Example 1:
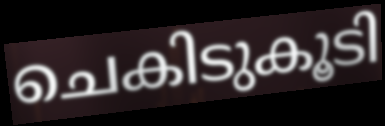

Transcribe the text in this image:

ചെകിടുകൂടി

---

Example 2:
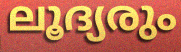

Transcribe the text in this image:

ലൂദ്യരും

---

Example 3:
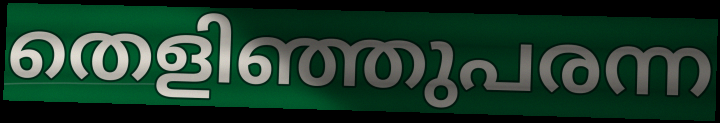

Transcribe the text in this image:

തെളിഞ്ഞുപരന്ന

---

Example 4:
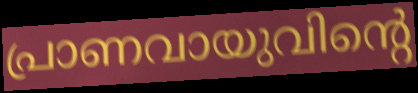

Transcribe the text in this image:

പ്രാണവായുവിന്റെ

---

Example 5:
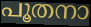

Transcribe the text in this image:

പൂതനാ